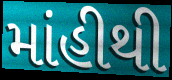
માંહીથી